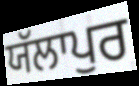
ਯੱਲਾਪੁਰ